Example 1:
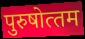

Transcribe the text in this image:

पुरुषोत्‍तम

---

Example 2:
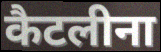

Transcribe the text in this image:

कैटलीना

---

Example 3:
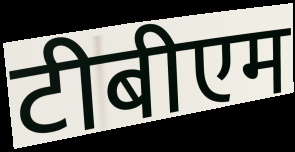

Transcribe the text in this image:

टीबीएम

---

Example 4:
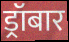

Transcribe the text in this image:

ड्रॉबार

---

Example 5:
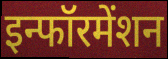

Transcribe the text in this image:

इन्फॉरमेंशन